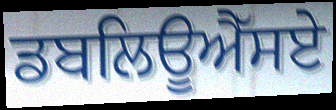
ਡਬਲਿਊਐੱਸਏ